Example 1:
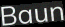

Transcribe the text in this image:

Baun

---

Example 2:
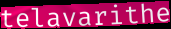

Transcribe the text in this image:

telavarithe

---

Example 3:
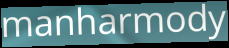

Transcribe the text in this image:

manharmody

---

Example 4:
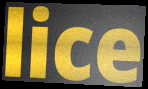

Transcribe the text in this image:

lice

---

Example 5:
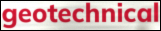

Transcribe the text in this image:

geotechnical